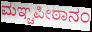
ಮಞ್ಚಪೀಠಾನಂ